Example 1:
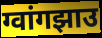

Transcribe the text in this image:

ग्वांगझाउ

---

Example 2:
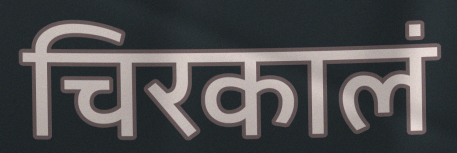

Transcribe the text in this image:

चिरकालं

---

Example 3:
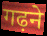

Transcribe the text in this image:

गढ़ने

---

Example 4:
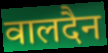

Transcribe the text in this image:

वालदैन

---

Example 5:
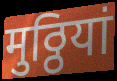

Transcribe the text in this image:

मुठ्ठियां